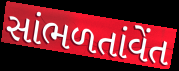
સાંભળતાંવેંત